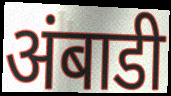
अंबाडी